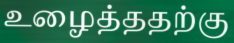
உழைத்ததற்கு